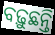
ବଢ଼ୁଛନ୍ତି